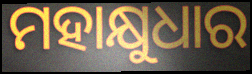
ମହାକ୍ଷୁଧାର